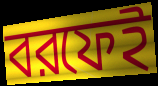
বরফেই